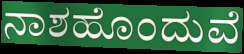
ನಾಶಹೊಂದುವೆ